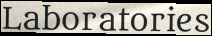
Laboratories